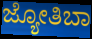
ಜ್ಯೋತಿಬಾ